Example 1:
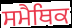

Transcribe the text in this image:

ਸਮੈਥਿਕ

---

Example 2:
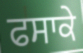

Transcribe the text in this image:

ਫਸਾਕੇ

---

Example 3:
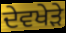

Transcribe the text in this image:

ਦੇਵਖੇੜੇ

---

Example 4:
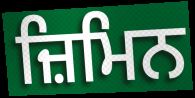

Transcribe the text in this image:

ਜ਼ਿਮਿਨ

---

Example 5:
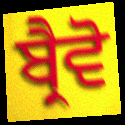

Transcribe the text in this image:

ਬ੍ਰੈਵੋ